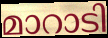
മാറാടി